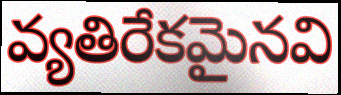
వ్యతిరేకమైనవి